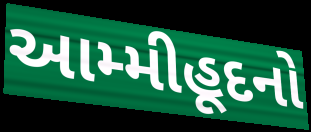
આમ્મીહૂદનો